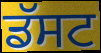
ਡੱਸਟ